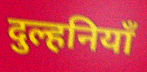
दुल्हनियाँ